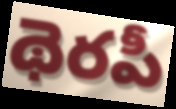
థెరపీ